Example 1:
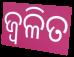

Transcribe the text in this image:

ଜ୍ୱଳିତ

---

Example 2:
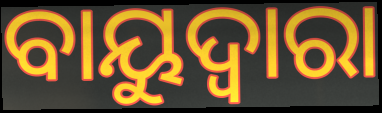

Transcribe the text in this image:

ବାୟୁଦ୍ୱାରା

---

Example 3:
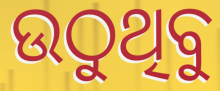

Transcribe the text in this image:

ଉଠୁଥିବୁ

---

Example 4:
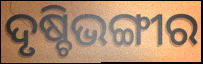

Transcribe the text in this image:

ଦୃଷ୍ଚିଭଙ୍ଗୀର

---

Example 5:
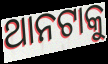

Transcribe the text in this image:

ଥାନଟାକୁ